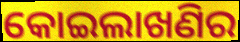
କୋଇଲାଖଣିର